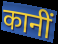
कानीं